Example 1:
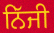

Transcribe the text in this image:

ਨਿੱਜੀ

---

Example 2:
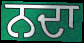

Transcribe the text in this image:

ਨਦਾ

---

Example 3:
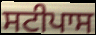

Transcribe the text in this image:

ਸਟੀਪਾਸ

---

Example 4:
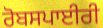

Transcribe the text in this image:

ਰੋਬਸਪਾਈਰੀ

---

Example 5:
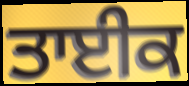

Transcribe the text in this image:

ਤਾਈਕ